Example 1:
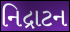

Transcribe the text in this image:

નિદ્રાટન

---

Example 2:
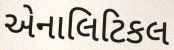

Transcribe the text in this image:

એનાલિટિકલ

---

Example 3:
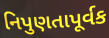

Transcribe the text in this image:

નિપુણતાપૂર્વક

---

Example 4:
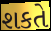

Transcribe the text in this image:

શકતે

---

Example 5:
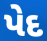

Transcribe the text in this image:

પેદ